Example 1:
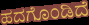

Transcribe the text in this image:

ಹದಗೊಂಡಿದೆ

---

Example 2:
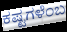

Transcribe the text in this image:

ಕಷ್ಟಗಳೆಂಬ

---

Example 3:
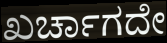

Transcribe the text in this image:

ಖರ್ಚಾಗದೇ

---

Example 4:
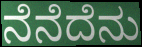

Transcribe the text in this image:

ನೆನೆದೆನು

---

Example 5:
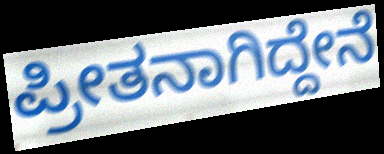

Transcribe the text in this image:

ಪ್ರೀತನಾಗಿದ್ದೇನೆ